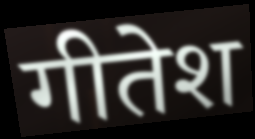
गीतेश